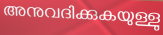
അനുവദിക്കുകയുള്ളു